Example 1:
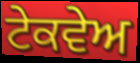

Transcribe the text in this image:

ਟੇਕਵੇਅ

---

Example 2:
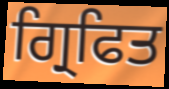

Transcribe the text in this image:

ਗ੍ਰਿਫਿਤ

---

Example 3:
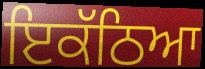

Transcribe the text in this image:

ਇਕੱਠਿਆ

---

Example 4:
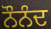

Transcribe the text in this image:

ਨੌਨੰਦ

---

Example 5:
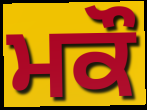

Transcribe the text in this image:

ਮਕੌ